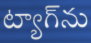
ట్యాగ్‌ను